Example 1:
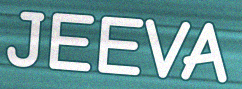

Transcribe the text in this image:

JEEVA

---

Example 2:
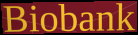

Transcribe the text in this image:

Biobank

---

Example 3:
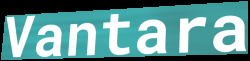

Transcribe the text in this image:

Vantara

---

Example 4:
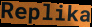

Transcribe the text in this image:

Replika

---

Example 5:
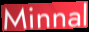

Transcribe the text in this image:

Minnal